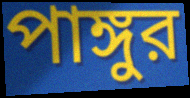
পাঙ্গুর